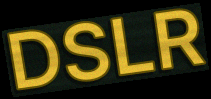
DSLR